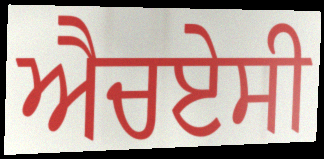
ਐਚਏਸੀ